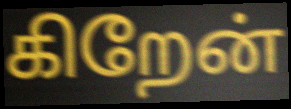
கிறேன்